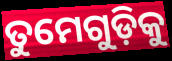
ତୁମେଗୁଡ଼ିକୁ